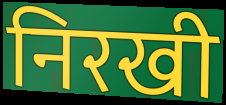
निरखी